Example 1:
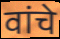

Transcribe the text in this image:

वांचे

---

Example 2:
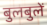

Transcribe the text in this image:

बुलबुलें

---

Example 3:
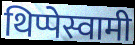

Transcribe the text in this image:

थिप्पेस्वामी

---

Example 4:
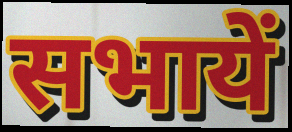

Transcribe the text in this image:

सभायें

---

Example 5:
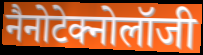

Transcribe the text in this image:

नैनोटेक्नोलॉजी